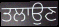
ਤਲਾਉਣ